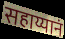
सहाय्यानं